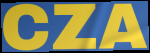
CZA